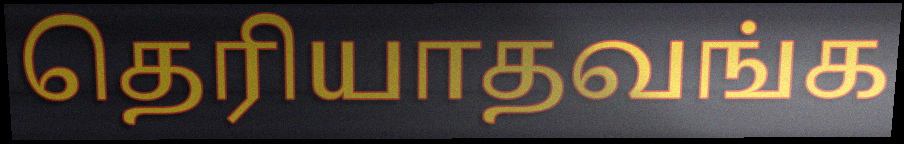
தெரியாதவங்க